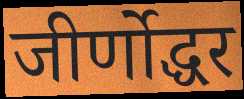
जीर्णोद्धर